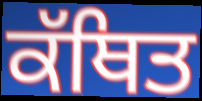
ਕੱਥਿਤ